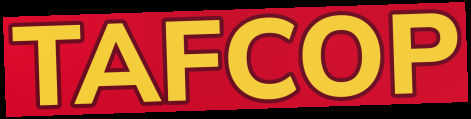
TAFCOP